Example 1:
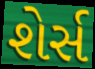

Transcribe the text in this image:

શેર્સ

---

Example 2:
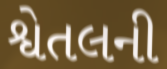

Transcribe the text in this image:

શ્વેતલની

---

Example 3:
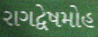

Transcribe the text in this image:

રાગદ્વેષમોહ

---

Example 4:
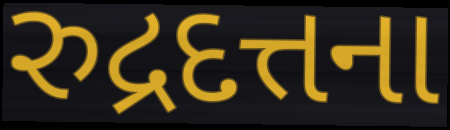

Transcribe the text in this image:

રુદ્રદત્તના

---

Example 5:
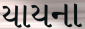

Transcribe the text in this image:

યાયના